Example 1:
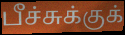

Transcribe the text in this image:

பீச்சுக்குக்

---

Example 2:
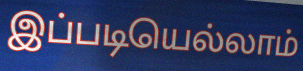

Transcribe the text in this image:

இப்படியெல்லாம்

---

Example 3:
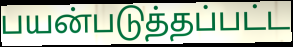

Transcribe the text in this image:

பயன்படுத்தப்பட்ட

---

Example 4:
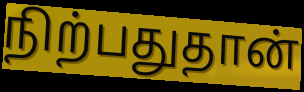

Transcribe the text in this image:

நிற்பதுதான்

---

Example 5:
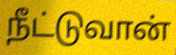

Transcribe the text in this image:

நீட்டுவான்